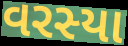
વરસ્યા